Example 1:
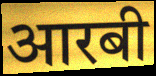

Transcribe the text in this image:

आरबी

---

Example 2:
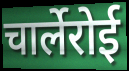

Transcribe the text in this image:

चार्लेरोई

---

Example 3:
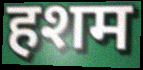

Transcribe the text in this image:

हशम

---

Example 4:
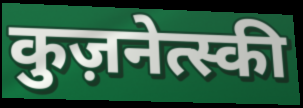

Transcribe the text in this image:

कुज़नेत्स्की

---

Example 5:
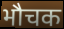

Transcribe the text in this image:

भौचक